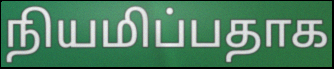
நியமிப்பதாக